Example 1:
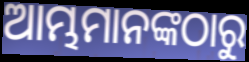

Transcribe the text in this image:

ଆମ୍ଭମାନଙ୍କଠାରୁ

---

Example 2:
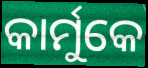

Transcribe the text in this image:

କାର୍ମୁକେ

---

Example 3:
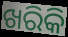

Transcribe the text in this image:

ଖରିକି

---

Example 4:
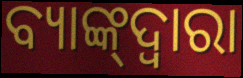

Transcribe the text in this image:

ବ୍ୟାଙ୍କ୍‌ଦ୍ୱାରା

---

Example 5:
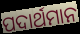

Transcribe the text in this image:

ପଦାର୍ଥମାନ